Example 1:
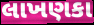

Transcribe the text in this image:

લાખણકા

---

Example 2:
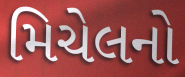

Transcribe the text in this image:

મિચેલનો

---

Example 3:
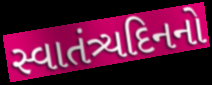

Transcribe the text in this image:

સ્વાતંત્ર્યદિનનો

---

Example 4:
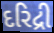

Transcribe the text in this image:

દરિદ્રી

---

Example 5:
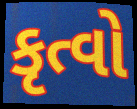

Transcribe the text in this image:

કૃત્વો